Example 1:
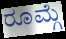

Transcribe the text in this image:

ರೂಮ್ಗೆ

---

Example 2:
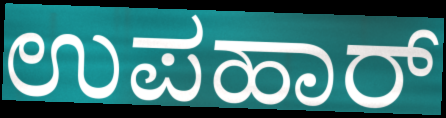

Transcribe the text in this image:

ಉಪಹಾರ್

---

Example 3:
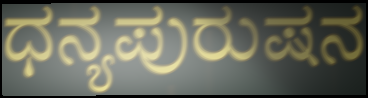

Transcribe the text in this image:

ಧನ್ಯಪುರುಷನ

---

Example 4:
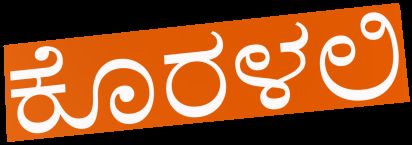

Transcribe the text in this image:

ಕೊರಳಲಿ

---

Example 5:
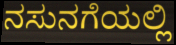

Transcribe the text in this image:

ನಸುನಗೆಯಲ್ಲಿ